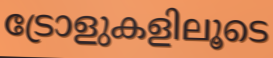
ട്രോളുകളിലൂടെ